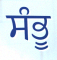
ਸੰਭੂ